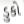
ડુકો